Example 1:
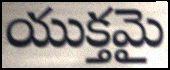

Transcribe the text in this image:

యుక్తమై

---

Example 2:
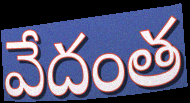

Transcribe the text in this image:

వేదంత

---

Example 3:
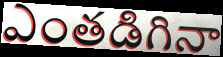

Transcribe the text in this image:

ఎంతడిగినా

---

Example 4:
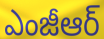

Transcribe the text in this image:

ఎంజీఆర్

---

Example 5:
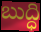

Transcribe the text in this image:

బుద్ధి